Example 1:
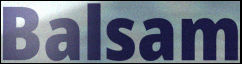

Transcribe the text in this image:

Balsam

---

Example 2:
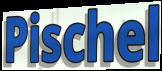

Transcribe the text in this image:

Pischel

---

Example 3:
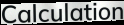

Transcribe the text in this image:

Calculation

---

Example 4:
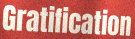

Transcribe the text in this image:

Gratification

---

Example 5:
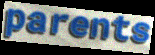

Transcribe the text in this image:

parents